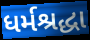
ધર્મશ્રદ્ધા